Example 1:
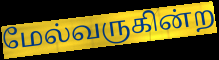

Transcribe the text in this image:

மேல்வருகின்ற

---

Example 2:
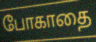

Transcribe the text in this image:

போகாதை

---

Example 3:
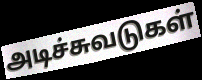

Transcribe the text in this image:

அடிச்சுவடுகள்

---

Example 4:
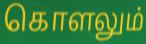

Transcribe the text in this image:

கொளலும்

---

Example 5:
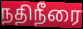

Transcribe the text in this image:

நதிநீரை